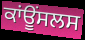
ਕਾਂਊਂਸਲਸ